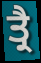
ਤ੍ਰੈ